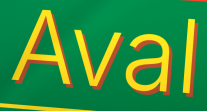
Aval